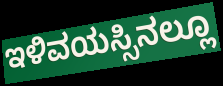
ಇಳಿವಯಸ್ಸಿನಲ್ಲೂ